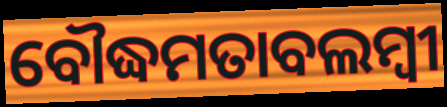
ବୌଦ୍ଧମତାବଲମ୍ବୀ